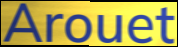
Arouet